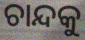
ଚାନ୍ଦକୁ